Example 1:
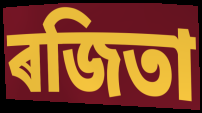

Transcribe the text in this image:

ৰজিতা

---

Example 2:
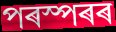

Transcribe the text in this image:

পৰস্পৰৰ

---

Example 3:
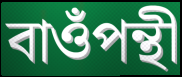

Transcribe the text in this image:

বাওঁপন্থী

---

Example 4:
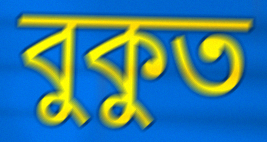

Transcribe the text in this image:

বুকুত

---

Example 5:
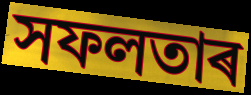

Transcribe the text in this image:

সফলতাৰ